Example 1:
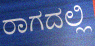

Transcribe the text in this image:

ರಾಗದಲ್ಲಿ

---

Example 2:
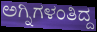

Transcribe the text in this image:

ಅಗ್ನಿಗಳಂತಿದ್ದ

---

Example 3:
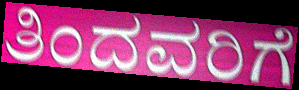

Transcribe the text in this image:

ತಿಂದವರಿಗೆ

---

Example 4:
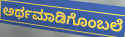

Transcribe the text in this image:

ಅರ್ಥಮಾಡಿಗೊಂಬಲೆ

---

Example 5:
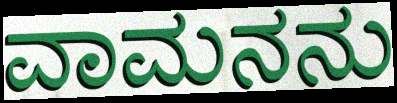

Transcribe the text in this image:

ವಾಮನನು